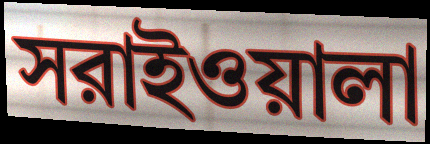
সরাইওয়ালা